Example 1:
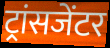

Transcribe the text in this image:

ट्रांसजेंटर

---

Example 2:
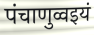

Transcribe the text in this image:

पंचाणुव्वइयं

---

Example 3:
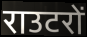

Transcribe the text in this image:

राउटरों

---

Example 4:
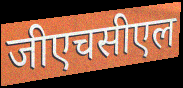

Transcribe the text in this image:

जीएचसीएल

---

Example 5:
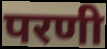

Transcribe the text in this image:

परणी